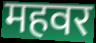
महवर